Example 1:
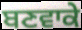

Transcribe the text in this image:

ਬਣਵਾਕੇ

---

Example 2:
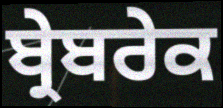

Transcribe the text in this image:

ਬ੍ਰੇਬਰੇਕ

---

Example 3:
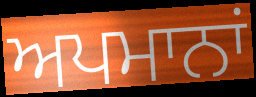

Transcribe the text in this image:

ਅਪਮਾਨਾਂ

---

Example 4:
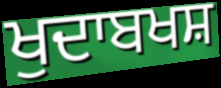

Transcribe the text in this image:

ਖੁਦਾਬਖਸ਼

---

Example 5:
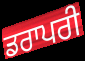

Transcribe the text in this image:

ਡਰਾਪਰੀ